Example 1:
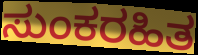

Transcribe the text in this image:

ಸುಂಕರಹಿತ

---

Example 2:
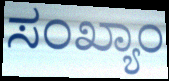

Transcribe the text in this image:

ಸಂಖ್ಯಾಂ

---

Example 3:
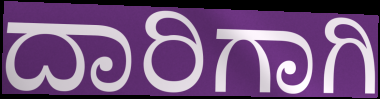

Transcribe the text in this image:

ದಾರಿಗಾಗಿ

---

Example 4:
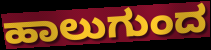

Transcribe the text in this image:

ಹಾಲುಗುಂದ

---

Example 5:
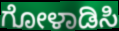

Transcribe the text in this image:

ಗೋಳಾಡಿಸಿ